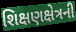
શિક્ષણક્ષેત્રની